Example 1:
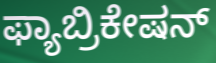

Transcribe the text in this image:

ಫ್ಯಾಬ್ರಿಕೇಷನ್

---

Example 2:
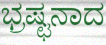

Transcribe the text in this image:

ಭ್ರಷ್ಟನಾದ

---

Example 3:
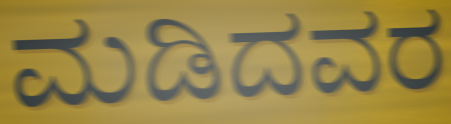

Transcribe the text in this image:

ಮಡಿದವರ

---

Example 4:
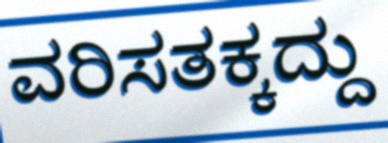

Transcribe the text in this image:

ವರಿಸತಕ್ಕದ್ದು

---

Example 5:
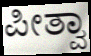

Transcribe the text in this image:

ಪೀತ್ವಾ